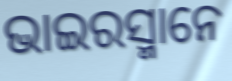
ଭାଇରସ୍ମାନେ